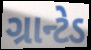
ગ્રાન્ટેડ